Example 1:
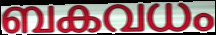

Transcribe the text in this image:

ബകവധം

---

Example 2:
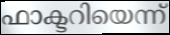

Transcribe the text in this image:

ഫാക്ടറിയെന്ന്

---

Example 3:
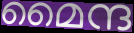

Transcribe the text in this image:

മൈന്ദ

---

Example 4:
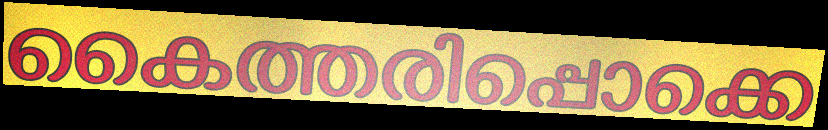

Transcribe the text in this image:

കൈത്തരിപ്പൊക്കെ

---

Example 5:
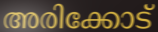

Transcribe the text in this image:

അരിക്കോട്